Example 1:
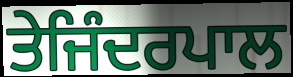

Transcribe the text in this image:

ਤੇਜਿੰਦਰਪਾਲ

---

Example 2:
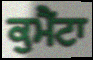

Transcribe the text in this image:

ਕੁਮੈਂਟਾ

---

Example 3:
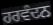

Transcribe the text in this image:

ਹਰਵੰਦਨ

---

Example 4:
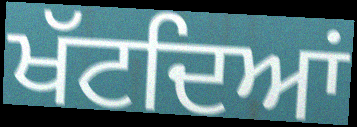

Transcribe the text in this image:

ਖੱਟਦਿਆਂ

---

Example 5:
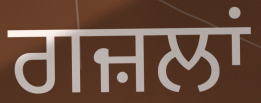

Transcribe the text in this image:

ਗਜ਼ਲਾਂ